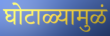
घोटाळ्यामुळं